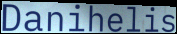
Danihelis